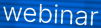
webinar